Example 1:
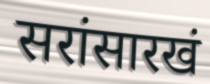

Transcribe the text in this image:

सरांसारखं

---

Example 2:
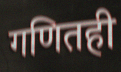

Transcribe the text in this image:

गणितही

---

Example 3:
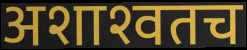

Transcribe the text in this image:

अशाश्वतच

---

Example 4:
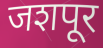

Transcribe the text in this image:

जशपूर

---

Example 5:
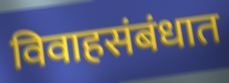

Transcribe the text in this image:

विवाहसंबंधात